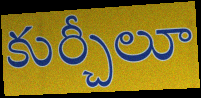
కుర్చీలూ